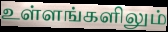
உள்ளங்களிலும்